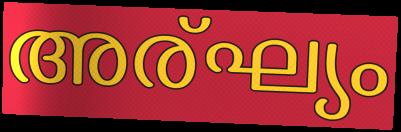
അര്ഘ്യം